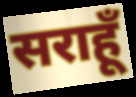
सराहूँ